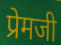
प्रेमजी